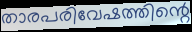
താരപരിവേഷത്തിന്റെ